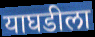
याघडीला